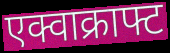
एक्वाक्राफ्ट